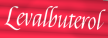
Levalbuterol